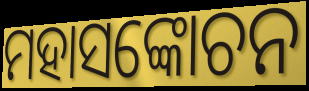
ମହାସଙ୍କୋଚନ